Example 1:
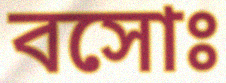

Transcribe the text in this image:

বসোঃ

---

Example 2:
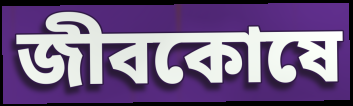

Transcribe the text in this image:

জীবকোষে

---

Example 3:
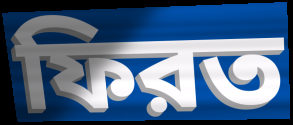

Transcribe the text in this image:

ফিরত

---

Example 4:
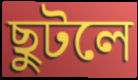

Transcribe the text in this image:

ছুটলে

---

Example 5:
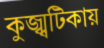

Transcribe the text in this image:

কুজ্ঝ্বটিকায়